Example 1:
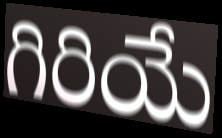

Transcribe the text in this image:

గిరియే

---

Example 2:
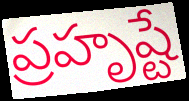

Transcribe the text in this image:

ప్రహృష్టే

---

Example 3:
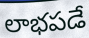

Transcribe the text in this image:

లాభపడే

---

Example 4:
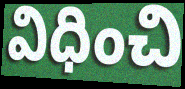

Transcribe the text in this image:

విధించి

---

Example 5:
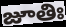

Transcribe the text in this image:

జూతిః